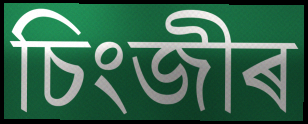
চিংজীৰ